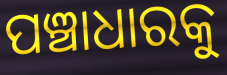
ପଞ୍ଚାଧାରକୁ